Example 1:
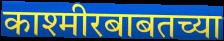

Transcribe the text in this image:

काश्मीरबाबतच्या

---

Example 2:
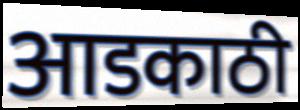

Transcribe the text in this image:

आडकाठी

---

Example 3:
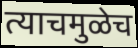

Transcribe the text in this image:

त्याचमुळेच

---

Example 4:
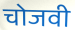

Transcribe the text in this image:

चोजवी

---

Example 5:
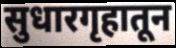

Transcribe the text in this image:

सुधारगृहातून